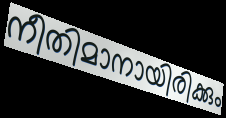
നീതിമാനായിരിക്കും